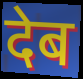
देब